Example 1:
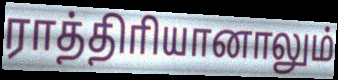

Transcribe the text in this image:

ராத்திரியானாலும்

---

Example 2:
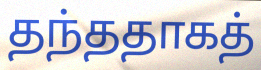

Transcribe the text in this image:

தந்ததாகத்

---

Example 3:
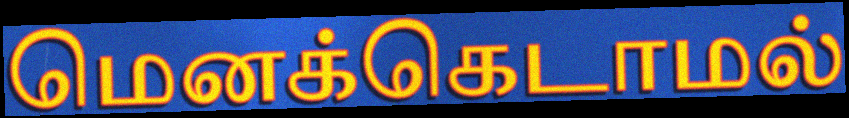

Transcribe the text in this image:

மெனக்கெடாமல்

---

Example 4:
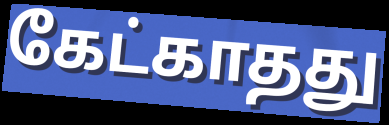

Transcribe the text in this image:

கேட்காதது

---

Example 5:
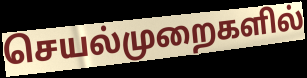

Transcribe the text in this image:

செயல்முறைகளில்